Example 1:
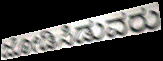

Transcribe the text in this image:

ಜೋಡಿಸಿಡುವರು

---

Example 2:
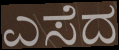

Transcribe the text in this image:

ಎಸೆದ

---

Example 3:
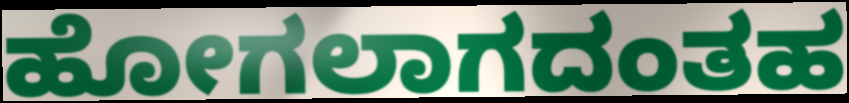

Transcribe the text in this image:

ಹೋಗಲಾಗದಂತಹ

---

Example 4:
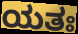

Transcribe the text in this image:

ಯತಃ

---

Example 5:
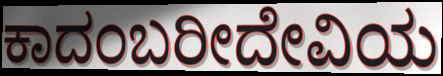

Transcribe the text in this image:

ಕಾದಂಬರೀದೇವಿಯ